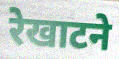
रेखाटने